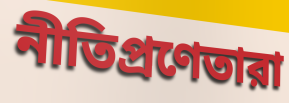
নীতিপ্রণেতারা